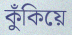
কুঁকিয়ে